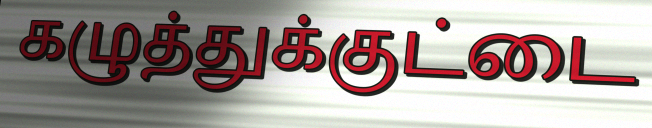
கழுத்துக்குட்டை